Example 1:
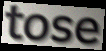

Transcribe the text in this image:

tose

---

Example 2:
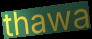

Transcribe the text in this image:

thawa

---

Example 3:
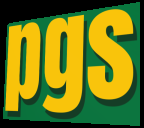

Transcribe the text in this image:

pgs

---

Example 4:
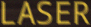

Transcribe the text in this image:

LASER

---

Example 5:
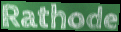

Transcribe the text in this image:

Rathode